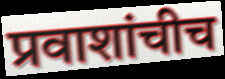
प्रवाशांचीच